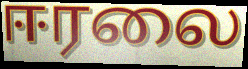
ஈரலை